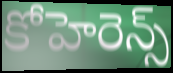
కోహెరెన్స్